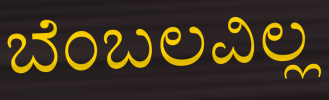
ಬೆಂಬಲವಿಲ್ಲ